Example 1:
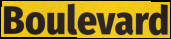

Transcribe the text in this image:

Boulevard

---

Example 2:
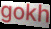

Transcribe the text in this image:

gokh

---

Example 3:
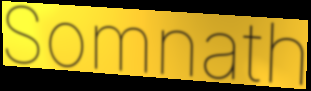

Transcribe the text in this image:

Somnath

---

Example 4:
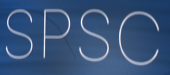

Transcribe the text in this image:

SPSC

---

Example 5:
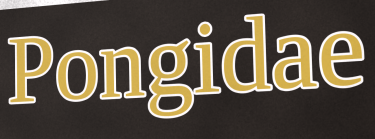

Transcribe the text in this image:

Pongidae